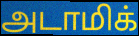
அடாமிக்